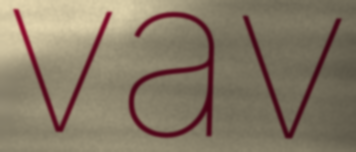
vav